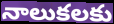
నాలుకలకు